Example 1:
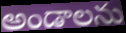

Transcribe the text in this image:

అండాలను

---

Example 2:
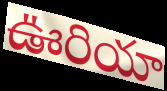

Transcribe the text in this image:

ఊరియా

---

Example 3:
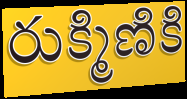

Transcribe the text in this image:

రుక్మిణికి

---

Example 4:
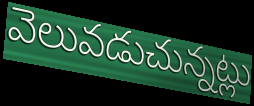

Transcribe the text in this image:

వెలువడుచున్నట్లు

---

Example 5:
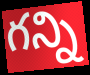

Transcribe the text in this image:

గన్ని